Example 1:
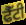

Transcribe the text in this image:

ਫੈੱਟੀ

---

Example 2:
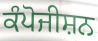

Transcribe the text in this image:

ਕੰਪੋਜੀਸ਼ਨ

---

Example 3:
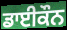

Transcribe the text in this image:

ਡਾਈਕੌਨ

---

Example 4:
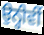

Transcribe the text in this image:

ਉਨ੍ਹੀਵੀਂ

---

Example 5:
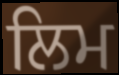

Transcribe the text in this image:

ਲਿਮ